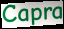
Capra